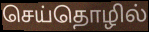
செய்தொழில்